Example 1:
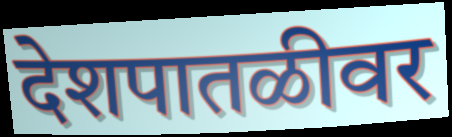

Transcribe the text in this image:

देशपातळीवर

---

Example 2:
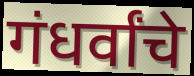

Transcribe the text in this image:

गंधर्वांचे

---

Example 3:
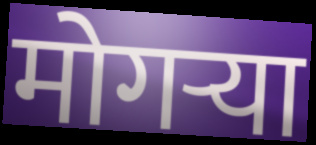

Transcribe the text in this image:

मोगऱ्या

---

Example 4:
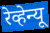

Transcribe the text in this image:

रेव्हेन्यू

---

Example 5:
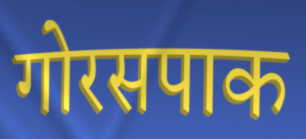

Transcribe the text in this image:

गोरसपाक